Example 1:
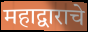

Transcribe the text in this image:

महाद्वाराचे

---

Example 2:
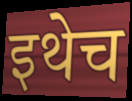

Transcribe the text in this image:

इथेच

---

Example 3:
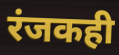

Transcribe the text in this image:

रंजकही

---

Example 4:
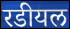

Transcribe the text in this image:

रडीयल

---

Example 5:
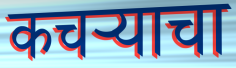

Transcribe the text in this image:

कचऱ्याचा